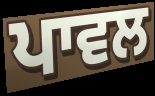
ਪਾਵਲ